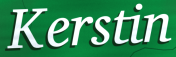
Kerstin